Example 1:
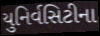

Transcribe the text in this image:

યુનિર્વસિટીના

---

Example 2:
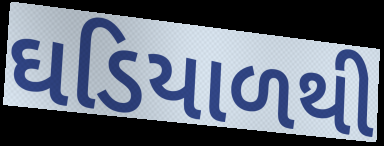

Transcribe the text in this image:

ઘડિયાળથી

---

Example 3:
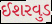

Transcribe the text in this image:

ઈશરવુડ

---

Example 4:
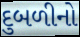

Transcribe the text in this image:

દુબળીનો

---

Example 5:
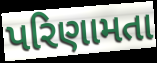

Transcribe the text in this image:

પરિણામતા